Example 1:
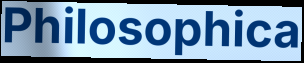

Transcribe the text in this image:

Philosophica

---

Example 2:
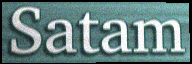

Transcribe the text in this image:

Satam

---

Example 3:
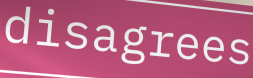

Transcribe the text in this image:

disagrees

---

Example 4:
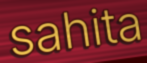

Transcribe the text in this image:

sahita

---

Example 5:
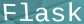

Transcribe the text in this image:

Flask